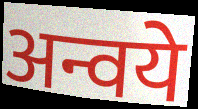
अन्‍वये